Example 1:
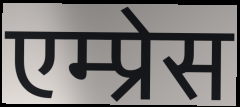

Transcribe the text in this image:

एम्प्रेस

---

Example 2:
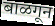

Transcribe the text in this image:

बाळगून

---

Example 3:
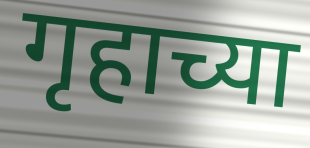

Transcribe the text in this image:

गृहाच्या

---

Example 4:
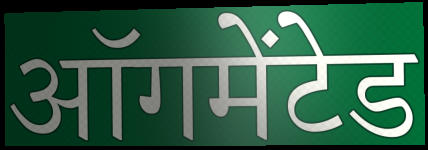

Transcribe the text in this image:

ऑगमेंटेड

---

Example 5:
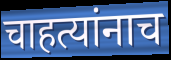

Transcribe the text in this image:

चाहत्यांनाच